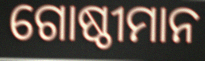
ଗୋଷ୍ଠୀମାନ